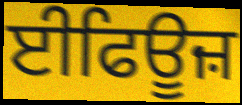
ਈਫਿਊਜ਼